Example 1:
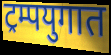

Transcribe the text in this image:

ट्रम्पयुगात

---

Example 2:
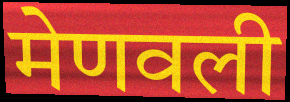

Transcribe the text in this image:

मेणवली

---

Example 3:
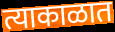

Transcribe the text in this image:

त्याकाळात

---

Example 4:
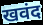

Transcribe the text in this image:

खवंद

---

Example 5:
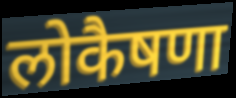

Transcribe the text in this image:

लोकैषणा